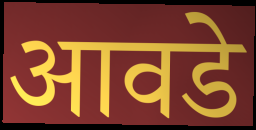
आवडे